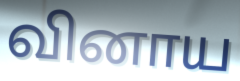
வினாய